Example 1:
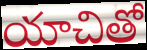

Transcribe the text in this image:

యాచితో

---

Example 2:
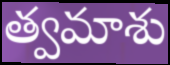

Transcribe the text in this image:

త్వమాశు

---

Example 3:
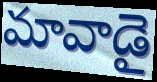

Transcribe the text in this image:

మావాడై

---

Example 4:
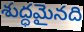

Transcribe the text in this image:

శుద్ధమైనది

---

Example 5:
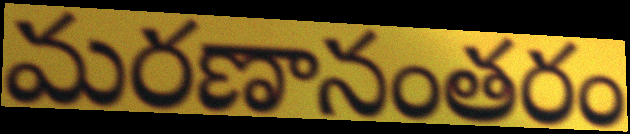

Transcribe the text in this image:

మరణానంతరం